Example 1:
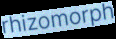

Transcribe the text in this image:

rhizomorph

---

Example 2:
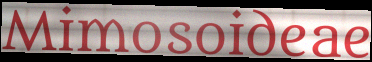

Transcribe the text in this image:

Mimosoideae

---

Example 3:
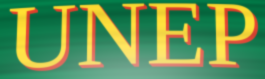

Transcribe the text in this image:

UNEP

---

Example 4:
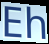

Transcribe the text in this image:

Eh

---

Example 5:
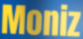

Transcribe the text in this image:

Moniz